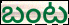
బంట